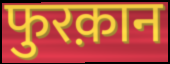
फुरक़ान